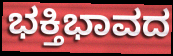
ಭಕ್ತಿಭಾವದ